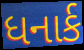
ધનાર્ક